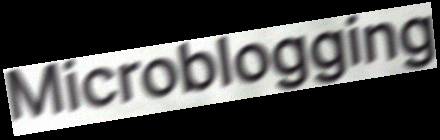
Microblogging